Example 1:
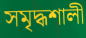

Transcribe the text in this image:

সমৃদ্ধশালী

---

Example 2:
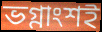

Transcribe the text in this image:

ভগ্নাংশই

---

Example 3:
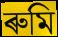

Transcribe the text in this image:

ৰুমি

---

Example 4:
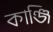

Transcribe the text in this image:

কাঞ্জি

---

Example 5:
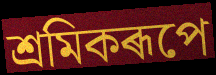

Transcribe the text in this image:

শ্ৰমিকৰূপে